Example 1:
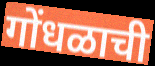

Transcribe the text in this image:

गोंधळाची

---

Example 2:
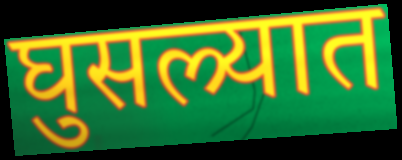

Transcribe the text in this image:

घुसल्यात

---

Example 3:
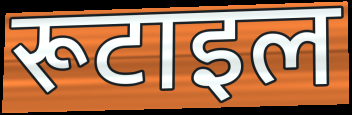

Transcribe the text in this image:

रूटाइल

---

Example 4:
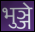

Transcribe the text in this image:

भुञ्जे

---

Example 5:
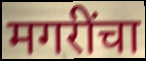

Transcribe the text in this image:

मगरींचा